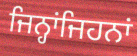
ਜਿਨ੍ਹਾਂਜਿਹਨਾਂ